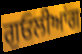
ਗੁਓਲੀਆਂਗ